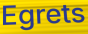
Egrets